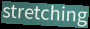
stretching